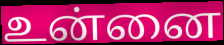
உன்னை